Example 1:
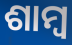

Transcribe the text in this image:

ଶାମ୍ୱ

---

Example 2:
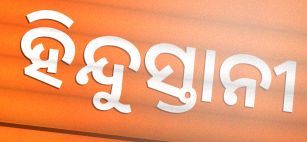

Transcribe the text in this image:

ହିନ୍ଦୁସ୍ତାନୀ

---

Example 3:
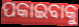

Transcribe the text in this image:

ପକାଇବାକୁ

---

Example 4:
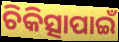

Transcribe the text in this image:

ଚିକିତ୍ସାପାଇଁ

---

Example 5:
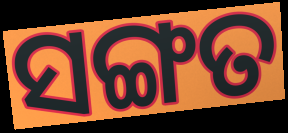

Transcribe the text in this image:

ସଙ୍ଗତ